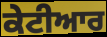
ਕੇਟੀਆਰ